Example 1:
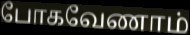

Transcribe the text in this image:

போகவேணாம்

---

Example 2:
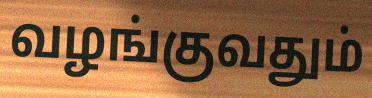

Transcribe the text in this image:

வழங்குவதும்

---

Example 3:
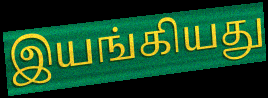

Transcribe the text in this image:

இயங்கியது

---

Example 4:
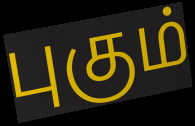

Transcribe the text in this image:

புகும்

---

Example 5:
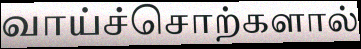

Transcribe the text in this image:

வாய்ச்சொற்களால்